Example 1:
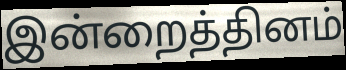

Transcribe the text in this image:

இன்றைத்தினம்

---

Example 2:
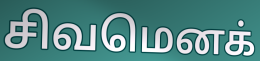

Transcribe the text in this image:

சிவமெனக்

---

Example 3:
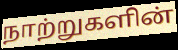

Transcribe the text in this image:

நாற்றுகளின்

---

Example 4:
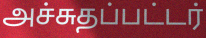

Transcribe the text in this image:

அச்சுதப்பட்டர்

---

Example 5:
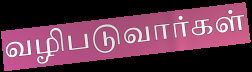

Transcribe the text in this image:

வழிபடுவார்கள்